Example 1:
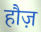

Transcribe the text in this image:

हौज़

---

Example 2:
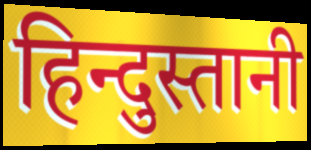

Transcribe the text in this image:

हिन्‍दुस्‍तानी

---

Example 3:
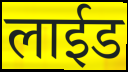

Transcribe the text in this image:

लाईड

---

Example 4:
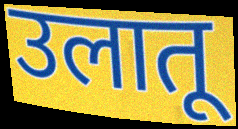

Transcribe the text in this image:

उलातू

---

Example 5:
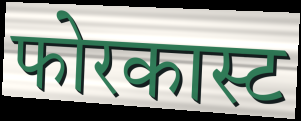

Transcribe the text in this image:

फोरकास्ट